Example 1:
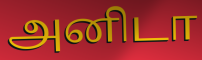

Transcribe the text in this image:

அனிடா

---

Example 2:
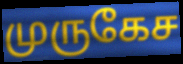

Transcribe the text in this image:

முருகேச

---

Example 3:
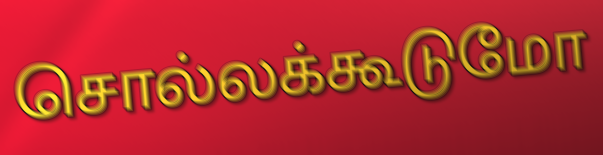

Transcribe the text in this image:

சொல்லக்கூடுமோ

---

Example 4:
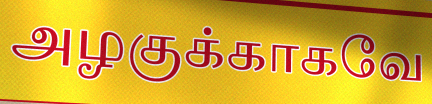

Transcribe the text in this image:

அழகுக்காகவே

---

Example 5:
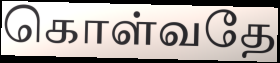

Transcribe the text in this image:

கொள்வதே